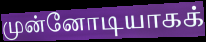
முன்னோடியாகக்